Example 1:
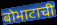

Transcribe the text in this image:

बोभाटाची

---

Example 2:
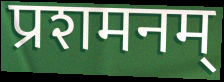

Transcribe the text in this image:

प्रशमनम्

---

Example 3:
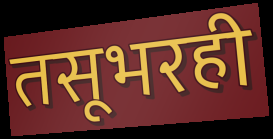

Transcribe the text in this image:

तसूभरही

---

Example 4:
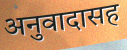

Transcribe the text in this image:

अनुवादासह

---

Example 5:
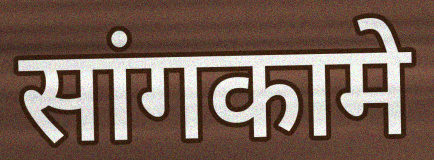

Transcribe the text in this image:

सांगकामे